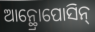
ଆନ୍ଥ୍ରୋପୋସିନ୍